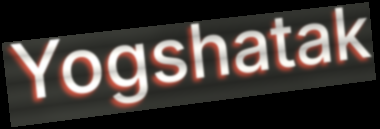
Yogshatak